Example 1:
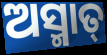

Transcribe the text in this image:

ଅସ୍ମାତ୍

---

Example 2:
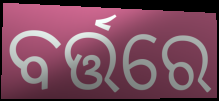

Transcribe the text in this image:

ବର୍ତ୍ତରେ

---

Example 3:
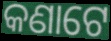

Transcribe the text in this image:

କଣାଟେ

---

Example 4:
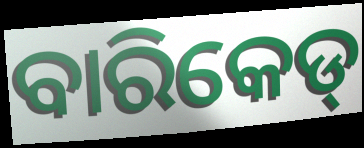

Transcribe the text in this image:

ବାରିକେଡ୍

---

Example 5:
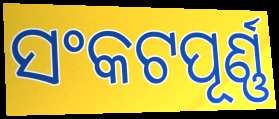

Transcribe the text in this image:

ସଂକଟପୂର୍ଣ୍ଣ